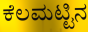
ಕೆಲಮಟ್ಟಿನ